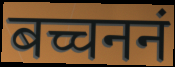
बच्चननं